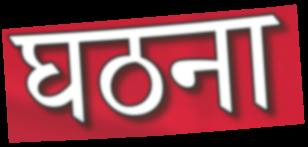
घठना